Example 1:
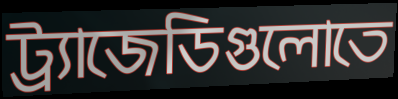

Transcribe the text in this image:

ট্র্যাজেডিগুলোতে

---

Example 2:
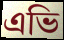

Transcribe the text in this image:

এভি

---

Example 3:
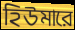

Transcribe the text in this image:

হিউমারে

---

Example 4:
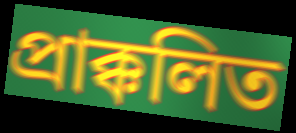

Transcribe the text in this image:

প্রাক্কলিত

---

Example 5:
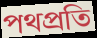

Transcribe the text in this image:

পথপ্রতি